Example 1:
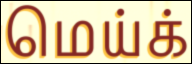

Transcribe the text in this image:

மெய்க்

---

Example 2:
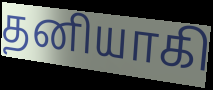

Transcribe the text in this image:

தனியாகி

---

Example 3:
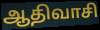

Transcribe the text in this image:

ஆதிவாசி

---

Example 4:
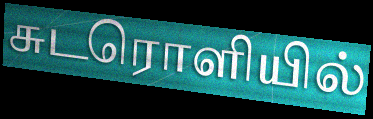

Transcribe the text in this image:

சுடரொளியில்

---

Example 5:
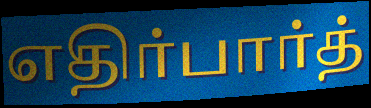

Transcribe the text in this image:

எதிர்பார்த்